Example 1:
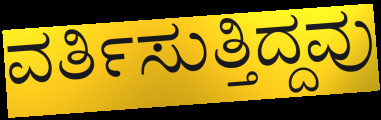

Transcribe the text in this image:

ವರ್ತಿಸುತ್ತಿದ್ದವು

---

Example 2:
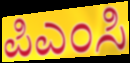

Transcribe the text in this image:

ಪಿಎಂಸಿ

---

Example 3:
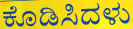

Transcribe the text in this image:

ಕೊಡಿಸಿದಳು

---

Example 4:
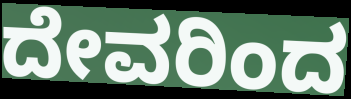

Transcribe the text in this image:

ದೇವರಿಂದ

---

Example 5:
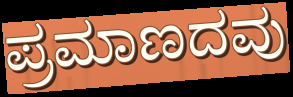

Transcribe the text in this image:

ಪ್ರಮಾಣದವು